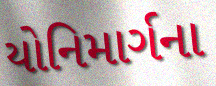
યોનિમાર્ગના